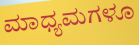
ಮಾಧ್ಯಮಗಳೂ